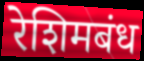
रेशिमबंध